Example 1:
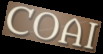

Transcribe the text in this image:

COAI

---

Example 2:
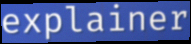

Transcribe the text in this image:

explainer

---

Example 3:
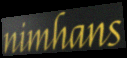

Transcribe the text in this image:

nimhans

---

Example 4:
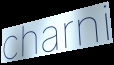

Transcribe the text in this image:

charni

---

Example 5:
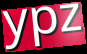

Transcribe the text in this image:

ypz